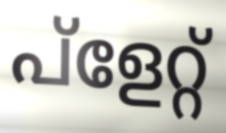
പ്ളേറ്റ്